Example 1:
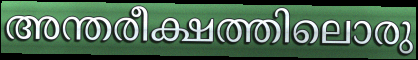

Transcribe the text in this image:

അന്തരീക്ഷത്തിലൊരു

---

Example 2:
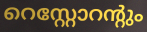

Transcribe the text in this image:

റെസ്റ്റോറന്റും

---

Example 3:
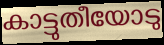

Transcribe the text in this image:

കാട്ടുതീയോടു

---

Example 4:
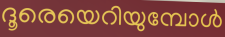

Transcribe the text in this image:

ദൂരെയെറിയുമ്പോൾ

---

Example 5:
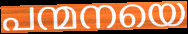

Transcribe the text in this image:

പന്മനയെ